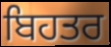
ਬਿਹਤਰ